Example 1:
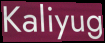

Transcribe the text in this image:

Kaliyug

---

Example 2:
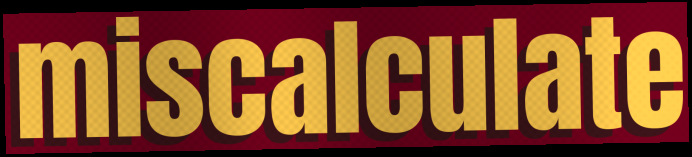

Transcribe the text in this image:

miscalculate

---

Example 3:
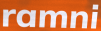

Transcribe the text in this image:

ramni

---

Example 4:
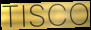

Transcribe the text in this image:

TISCO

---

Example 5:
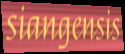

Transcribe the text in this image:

siangensis